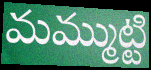
మమ్ముట్టి